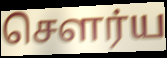
சௌர்ய